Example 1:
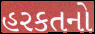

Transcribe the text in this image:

હરકતનો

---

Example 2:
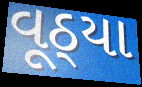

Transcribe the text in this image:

વૂઠ્યા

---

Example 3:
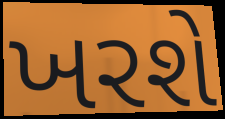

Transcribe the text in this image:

ખરશે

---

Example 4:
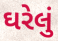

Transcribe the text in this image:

ઘરેલું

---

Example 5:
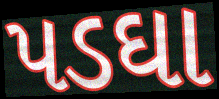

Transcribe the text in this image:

પડઘા